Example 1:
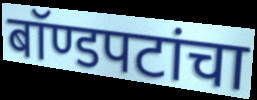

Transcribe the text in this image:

बॉण्डपटांचा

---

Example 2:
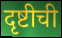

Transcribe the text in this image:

दृष्टीची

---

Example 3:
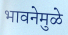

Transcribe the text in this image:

भावनेमुळे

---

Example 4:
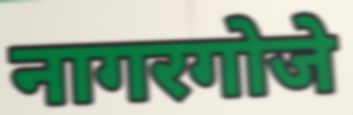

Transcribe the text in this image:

नागरगोजे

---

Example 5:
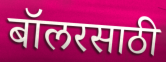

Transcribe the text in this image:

बॉलरसाठी